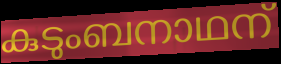
കുടുംബനാഥന്